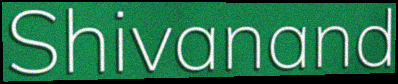
Shivanand